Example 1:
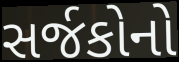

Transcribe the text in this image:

સર્જકોનો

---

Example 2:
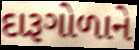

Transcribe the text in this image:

દારૂગોળાને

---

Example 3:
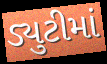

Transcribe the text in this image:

ડ્યુટીમાં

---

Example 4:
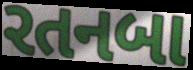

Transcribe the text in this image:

રતનબા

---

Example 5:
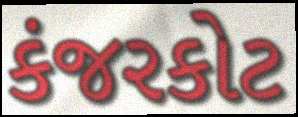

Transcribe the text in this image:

કંજરકોટ